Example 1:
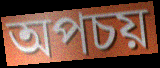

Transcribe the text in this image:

অপচয়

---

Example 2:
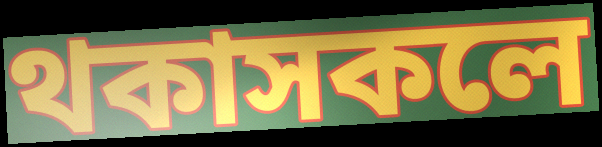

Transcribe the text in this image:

থকাসকলে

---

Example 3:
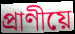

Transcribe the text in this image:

প্ৰাণীয়ে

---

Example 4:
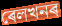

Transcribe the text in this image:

ৰেলখনৰ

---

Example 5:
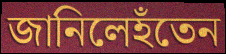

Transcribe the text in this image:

জানিলেহঁতেন